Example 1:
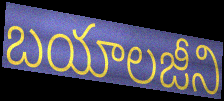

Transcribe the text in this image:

బయాలజీని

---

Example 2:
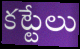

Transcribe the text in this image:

కట్టేలు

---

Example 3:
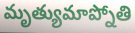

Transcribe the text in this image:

మృత్యుమాప్నోతి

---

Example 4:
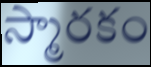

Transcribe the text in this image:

స్మారకం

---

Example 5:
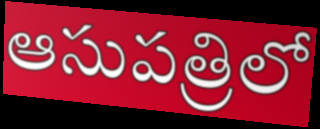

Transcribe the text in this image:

ఆసుపత్రిలో